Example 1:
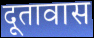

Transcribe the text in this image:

दूतावास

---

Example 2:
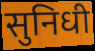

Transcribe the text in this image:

सुनिधी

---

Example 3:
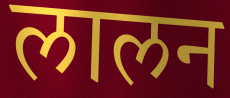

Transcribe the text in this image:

लालन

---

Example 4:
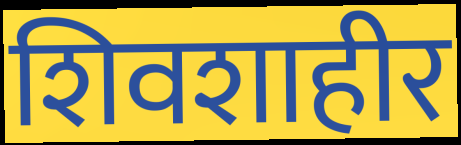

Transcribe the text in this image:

शिवशाहीर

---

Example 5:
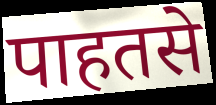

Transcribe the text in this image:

पाहतसे